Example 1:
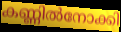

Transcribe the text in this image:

കണ്ണിൽനോക്കി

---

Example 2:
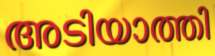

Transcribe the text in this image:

അടിയാത്തി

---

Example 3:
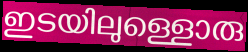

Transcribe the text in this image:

ഇടയിലുള്ളൊരു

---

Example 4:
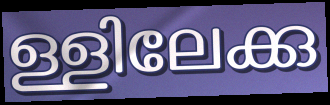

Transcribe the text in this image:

ള്ളിലേക്കു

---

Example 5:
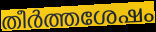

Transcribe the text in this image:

തീർത്തശേഷം